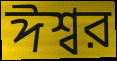
ঈশ্বর